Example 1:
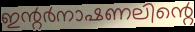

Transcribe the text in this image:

ഇന്റർനാഷണലിന്റെ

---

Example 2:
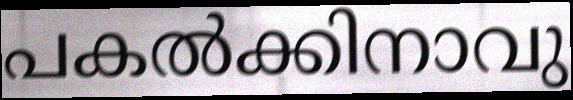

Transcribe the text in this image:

പകൽക്കിനാവു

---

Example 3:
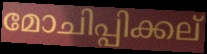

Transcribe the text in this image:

മോചിപ്പിക്കല്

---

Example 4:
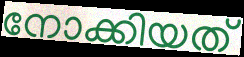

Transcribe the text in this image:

നോക്കിയത്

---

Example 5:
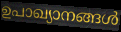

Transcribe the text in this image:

ഉപാഖ്യാനങ്ങൾ